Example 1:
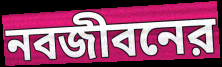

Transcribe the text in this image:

নবজীবনের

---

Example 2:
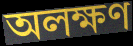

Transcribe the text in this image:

অলক্ষণ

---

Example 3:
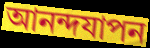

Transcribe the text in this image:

আনন্দযাপন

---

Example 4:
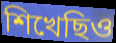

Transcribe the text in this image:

শিখেছিও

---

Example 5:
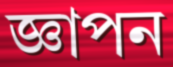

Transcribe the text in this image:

জ্ঞাপন